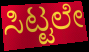
ಸಿಟ್ಟಲೇ